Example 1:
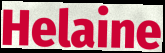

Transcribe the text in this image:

Helaine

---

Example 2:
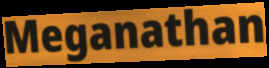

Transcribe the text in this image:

Meganathan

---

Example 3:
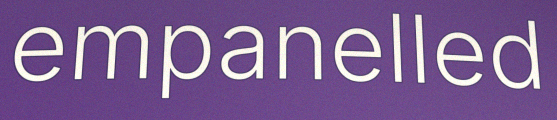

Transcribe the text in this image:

empanelled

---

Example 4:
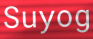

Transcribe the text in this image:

Suyog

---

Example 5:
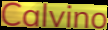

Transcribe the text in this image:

Calvino